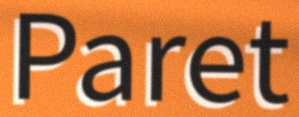
Paret